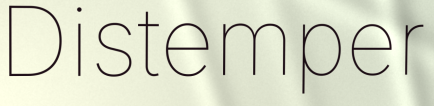
Distemper